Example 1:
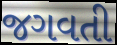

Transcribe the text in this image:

જગવતી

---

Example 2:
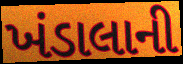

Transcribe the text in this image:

ખંડાલાની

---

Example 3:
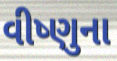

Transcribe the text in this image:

વીષ્ણુના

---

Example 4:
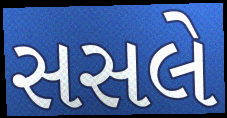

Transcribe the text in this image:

સસલે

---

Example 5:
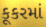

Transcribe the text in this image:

કૂકરમાં